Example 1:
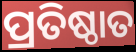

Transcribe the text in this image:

ପ୍ରତିଷ୍ଠାତ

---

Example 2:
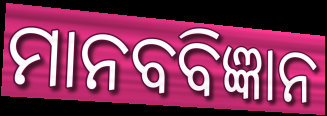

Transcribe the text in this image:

ମାନବବିଜ୍ଞାନ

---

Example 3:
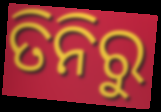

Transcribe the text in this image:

ତିନିରୁ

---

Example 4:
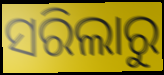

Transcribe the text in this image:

ସରିଲାରୁ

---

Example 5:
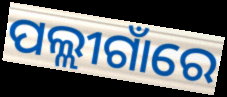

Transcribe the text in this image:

ପଲ୍ଲୀଗାଁରେ